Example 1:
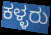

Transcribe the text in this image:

ಕಳ್ಳರು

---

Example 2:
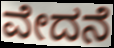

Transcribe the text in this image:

ವೇದನೆ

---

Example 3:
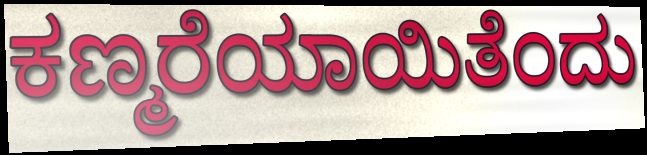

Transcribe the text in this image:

ಕಣ್ಮರೆಯಾಯಿತೆಂದು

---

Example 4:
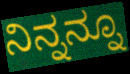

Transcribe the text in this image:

ನಿನ್ನನ್ನೂ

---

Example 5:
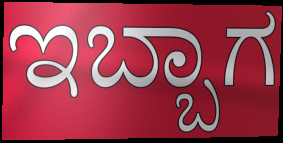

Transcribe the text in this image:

ಇಬ್ಬಾಗ